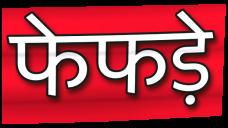
फेफड़े